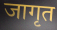
जागृत